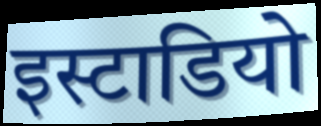
इस्टाडियो